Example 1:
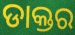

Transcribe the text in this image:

ଡାକ୍ତର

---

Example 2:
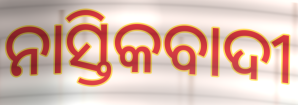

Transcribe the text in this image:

ନାସ୍ତିକବାଦୀ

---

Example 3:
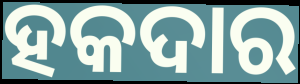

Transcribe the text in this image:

ହକଦାର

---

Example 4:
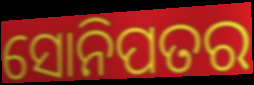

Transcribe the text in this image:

ସୋନିପତର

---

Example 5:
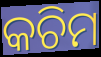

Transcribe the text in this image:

କଚିମ